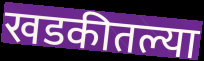
खडकीतल्या